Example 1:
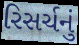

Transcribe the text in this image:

રિસર્ચનું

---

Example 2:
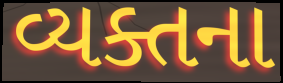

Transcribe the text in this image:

વ્યક્તના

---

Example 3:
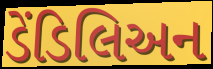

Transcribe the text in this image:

ડેંડિલિઅન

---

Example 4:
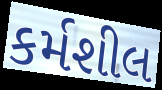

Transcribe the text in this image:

કર્મશીલ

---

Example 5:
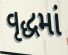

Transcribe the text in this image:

વૃદ્ધમાં